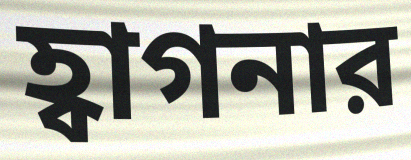
হ্বাগনার